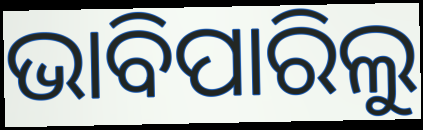
ଭାବିପାରିଲୁ